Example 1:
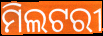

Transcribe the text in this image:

ମିଲଟରୀ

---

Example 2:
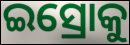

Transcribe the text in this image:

ଇସ୍ରୋକୁ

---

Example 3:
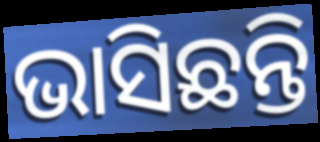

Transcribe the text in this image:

ଭାସିଛନ୍ତି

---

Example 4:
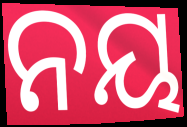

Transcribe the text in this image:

ନୟ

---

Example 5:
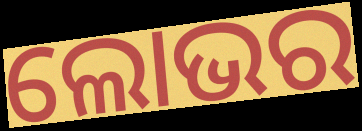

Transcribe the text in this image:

ଲୋଭର